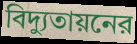
বিদ্যুতায়নের